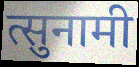
त्सुनामी